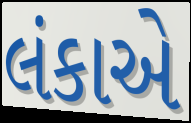
લંકાએ